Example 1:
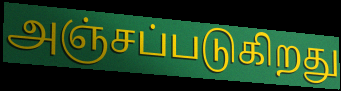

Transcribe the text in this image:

அஞ்சப்படுகிறது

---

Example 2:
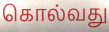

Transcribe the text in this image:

கொல்வது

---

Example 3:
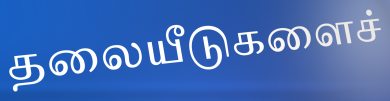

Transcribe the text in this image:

தலையீடுகளைச்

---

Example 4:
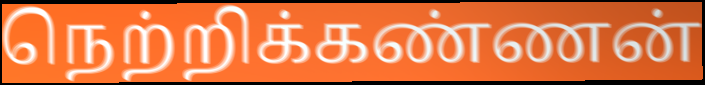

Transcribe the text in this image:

நெற்றிக்கண்ணன்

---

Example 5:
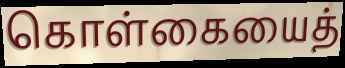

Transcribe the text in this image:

கொள்கையைத்